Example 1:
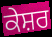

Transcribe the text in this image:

ਕੇਸ਼ਰ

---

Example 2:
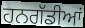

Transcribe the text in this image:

ਹਨਗੱਡੀਆਂ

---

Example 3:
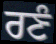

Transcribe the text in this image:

ਰਣੰ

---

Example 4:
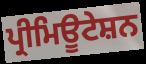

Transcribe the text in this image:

ਪ੍ਰੀਮਿਊਟੇਸ਼ਨ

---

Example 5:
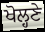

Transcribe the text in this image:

ਖੋਲ੍ਹਣੇ